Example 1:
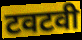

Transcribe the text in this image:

टवटवी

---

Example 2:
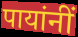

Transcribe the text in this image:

पायांनीं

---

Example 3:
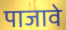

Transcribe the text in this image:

पाजावे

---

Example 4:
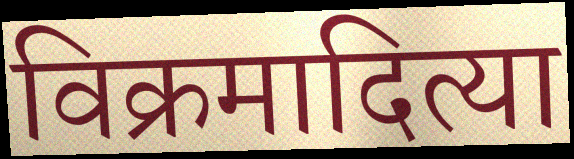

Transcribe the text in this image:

विक्रमादित्या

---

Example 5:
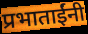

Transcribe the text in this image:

प्रभाताईंनी